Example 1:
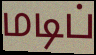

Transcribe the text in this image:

மடிப்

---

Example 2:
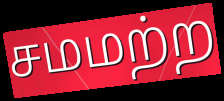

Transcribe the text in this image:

சமமற்ற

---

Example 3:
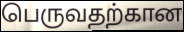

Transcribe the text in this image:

பெருவதற்கான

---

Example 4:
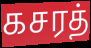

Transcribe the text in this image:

கசரத்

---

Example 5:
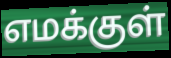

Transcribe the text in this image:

எமக்குள்